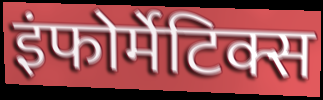
इंफोर्मेटिक्स